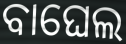
ବାଘେଲ